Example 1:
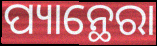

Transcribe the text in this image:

ପ୍ୟାନ୍ଥେରା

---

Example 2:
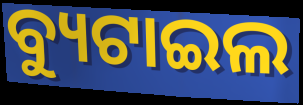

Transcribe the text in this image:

ବ୍ୟୁଟାଇଲ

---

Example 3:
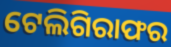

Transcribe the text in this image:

ଟେଲିଗିରାଫର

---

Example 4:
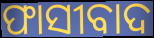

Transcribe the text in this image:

ଫାସୀବାଦ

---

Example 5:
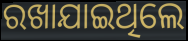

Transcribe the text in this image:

ରଖାଯାଇଥିଲେ